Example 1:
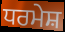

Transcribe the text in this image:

ਧਰਮੇਸ਼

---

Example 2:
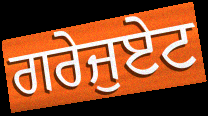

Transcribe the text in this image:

ਗਰੇਜੁਏਟ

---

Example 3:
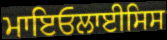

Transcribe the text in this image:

ਮਾਇਓਲਾਈਸਿਸ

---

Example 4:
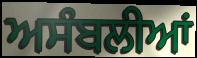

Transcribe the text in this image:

ਅਸੰਬਲੀਆਂ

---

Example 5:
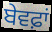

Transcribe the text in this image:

ਬੇਵਫ਼ਾਂ